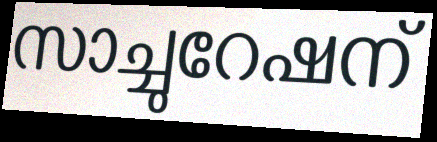
സാച്ചുറേഷന്